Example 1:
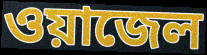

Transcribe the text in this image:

ওয়াজেল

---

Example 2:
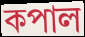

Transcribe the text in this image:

কপাল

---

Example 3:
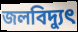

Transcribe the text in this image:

জলবিদ্যুৎ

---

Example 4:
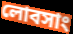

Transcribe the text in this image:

লোবসাং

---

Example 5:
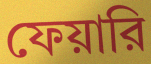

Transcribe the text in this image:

ফেয়ারি